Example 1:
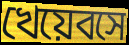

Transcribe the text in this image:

খেয়েবসে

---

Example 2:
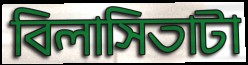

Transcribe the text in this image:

বিলাসিতাটা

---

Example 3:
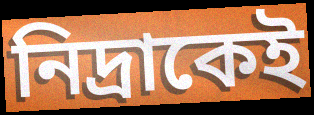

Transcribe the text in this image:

নিদ্রাকেই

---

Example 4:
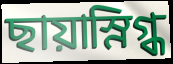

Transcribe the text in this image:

ছায়াস্নিগ্ধ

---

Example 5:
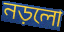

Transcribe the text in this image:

নড়লো